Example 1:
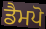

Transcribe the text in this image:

ਡੈਮਪੋ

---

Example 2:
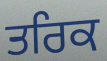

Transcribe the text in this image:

ਤਰਿਕ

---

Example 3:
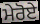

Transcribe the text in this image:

ਮੇਰੋਏ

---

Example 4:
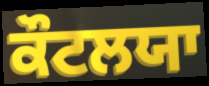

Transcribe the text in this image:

ਕੌਟਲਯਾ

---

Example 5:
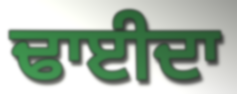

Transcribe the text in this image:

ਢਾਈਦਾ